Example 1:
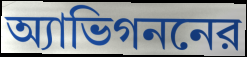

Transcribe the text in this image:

অ্যাভিগননের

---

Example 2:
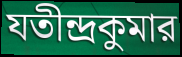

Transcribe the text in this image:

যতীন্দ্রকুমার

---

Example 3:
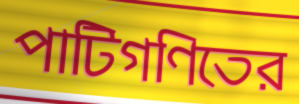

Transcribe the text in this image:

পাটিগণিতের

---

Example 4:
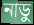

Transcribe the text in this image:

নাডু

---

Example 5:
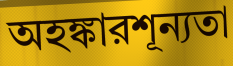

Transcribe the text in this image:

অহঙ্কারশূন্যতা